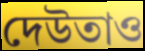
দেউতাও